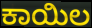
ಕಾಯಿಲ